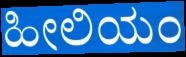
ಹೀಲಿಯಂ